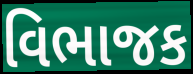
વિભાજક